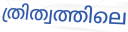
ത്രിത്വത്തിലെ